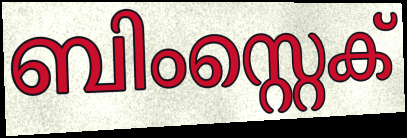
ബിംസ്റ്റെക്